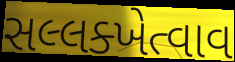
સલ્લક્ખેત્વાવ